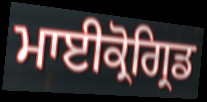
ਮਾਈਕ੍ਰੋਗ੍ਰਿਡ